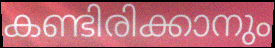
കണ്ടിരിക്കാനും